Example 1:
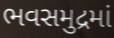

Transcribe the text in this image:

ભવસમુદ્રમાં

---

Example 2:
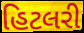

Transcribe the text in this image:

હિટલરી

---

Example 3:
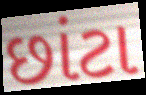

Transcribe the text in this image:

છાંટા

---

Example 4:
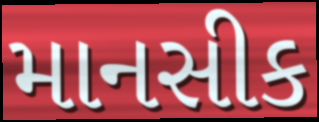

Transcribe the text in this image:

માનસીક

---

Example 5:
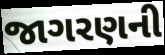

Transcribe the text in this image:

જાગરણની